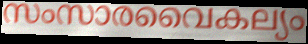
സംസാരവൈകല്യം